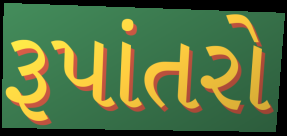
રૂપાંતરો